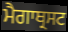
ਮੈਗਾਥ੍ਰਸਟ